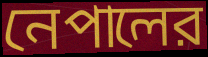
নেপালের